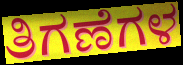
ತಿಗಣೆಗಳ